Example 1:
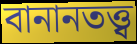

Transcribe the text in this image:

বানানতত্ত্ব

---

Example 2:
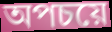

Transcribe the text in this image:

অপচয়ে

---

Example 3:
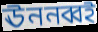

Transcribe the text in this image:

ঊননব্বই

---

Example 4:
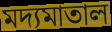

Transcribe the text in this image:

মদ্যমাতাল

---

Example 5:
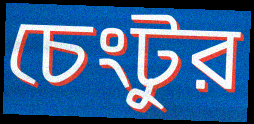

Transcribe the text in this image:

চেংটুর